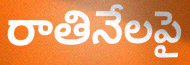
రాతినేలపై